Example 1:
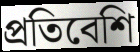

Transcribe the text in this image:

প্রতিবেশি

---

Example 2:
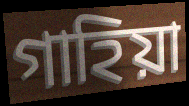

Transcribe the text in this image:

গাহিয়া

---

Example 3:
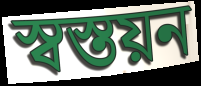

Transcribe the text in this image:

স্বস্তয়ন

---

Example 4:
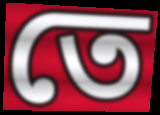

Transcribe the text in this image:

তে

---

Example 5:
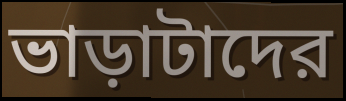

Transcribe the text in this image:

ভাড়াটাদের